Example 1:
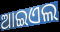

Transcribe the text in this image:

ଆଇଏଲ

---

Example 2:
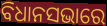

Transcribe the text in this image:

ବିଧାନସଭାରେ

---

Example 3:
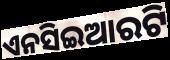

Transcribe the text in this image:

ଏନସିଇଆରଟି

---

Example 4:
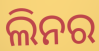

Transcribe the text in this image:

ଲିନର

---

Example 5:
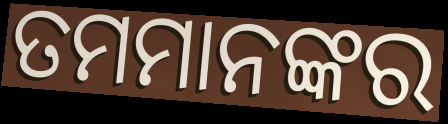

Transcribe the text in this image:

ତମମାନଙ୍କର